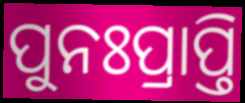
ପୁନଃପ୍ରାପ୍ତି